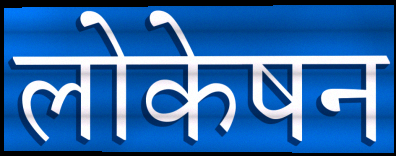
लोकेषन